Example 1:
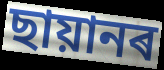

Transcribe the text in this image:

ছায়ানৰ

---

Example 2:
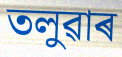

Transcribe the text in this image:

তলুৱাৰ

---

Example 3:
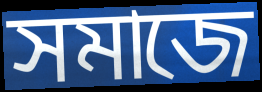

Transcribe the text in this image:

সমাজে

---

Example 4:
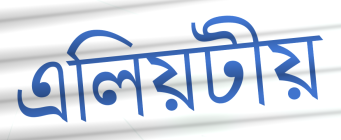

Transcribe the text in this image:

এলিয়টীয়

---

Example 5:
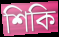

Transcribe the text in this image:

শিকি